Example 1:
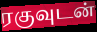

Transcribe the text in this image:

ரகுவுடன்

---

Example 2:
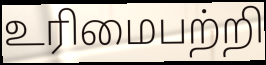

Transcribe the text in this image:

உரிமைபற்றி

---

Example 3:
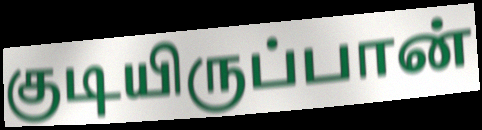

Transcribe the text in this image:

குடியிருப்பான்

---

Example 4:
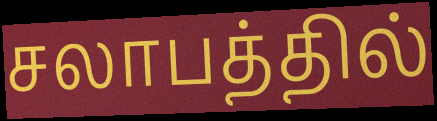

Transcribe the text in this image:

சலாபத்தில்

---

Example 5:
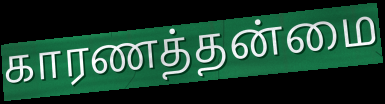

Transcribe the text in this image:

காரணத்தன்மை